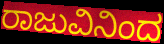
ರಾಜುವಿನಿಂದ